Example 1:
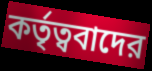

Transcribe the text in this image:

কর্তৃত্ববাদের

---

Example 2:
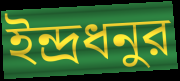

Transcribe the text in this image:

ইন্দ্রধনুর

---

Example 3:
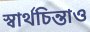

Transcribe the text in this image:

স্বার্থচিন্তাও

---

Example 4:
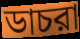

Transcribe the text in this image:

ডাচরা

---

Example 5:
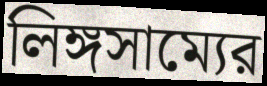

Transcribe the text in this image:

লিঙ্গসাম্যের